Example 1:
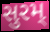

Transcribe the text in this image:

સુરમ્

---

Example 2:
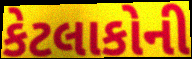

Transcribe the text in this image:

કેટલાકોની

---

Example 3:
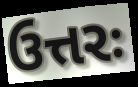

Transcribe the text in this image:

ઉત્તરઃ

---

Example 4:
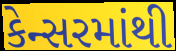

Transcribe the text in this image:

કેન્સરમાંથી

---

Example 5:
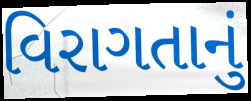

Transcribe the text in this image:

વિરાગતાનું